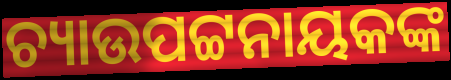
ଚ୍ୟାଉପଟ୍ଟନାୟକଙ୍କ